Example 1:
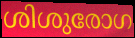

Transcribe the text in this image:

ശിശുരോഗ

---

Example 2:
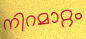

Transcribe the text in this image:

നിറമാറ്റം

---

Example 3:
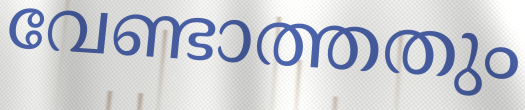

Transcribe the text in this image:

വേണ്ടാത്തതും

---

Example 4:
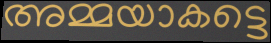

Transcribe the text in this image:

അമ്മയാകട്ടെ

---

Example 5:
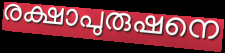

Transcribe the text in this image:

രക്ഷാപുരുഷനെ